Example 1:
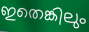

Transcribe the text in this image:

ഇതെങ്കിലും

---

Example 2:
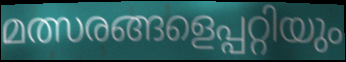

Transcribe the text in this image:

മത്സരങ്ങളെപ്പറ്റിയും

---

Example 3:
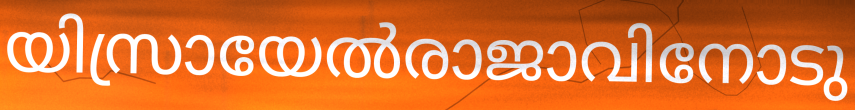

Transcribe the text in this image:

യിസ്രായേൽരാജാവിനോടു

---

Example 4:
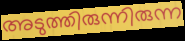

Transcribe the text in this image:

അടുത്തിരുന്നിരുന്ന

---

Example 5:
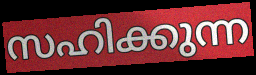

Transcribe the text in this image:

സഹിക്കുന്ന